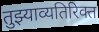
तुझ्याव्यतिरिक्त